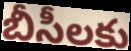
బీసీలకు